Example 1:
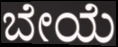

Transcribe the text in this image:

ಬೇಯೆ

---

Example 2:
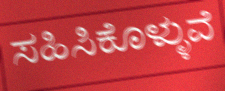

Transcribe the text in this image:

ಸಹಿಸಿಕೊಳ್ಳುವೆ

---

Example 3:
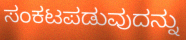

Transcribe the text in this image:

ಸಂಕಟಪಡುವುದನ್ನು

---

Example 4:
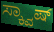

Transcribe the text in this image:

ಸ್ಕ್ವಾಷ್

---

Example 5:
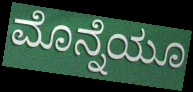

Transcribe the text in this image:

ಮೊನ್ನೆಯೂ